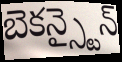
బెకన్స్టైన్